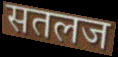
सतलज